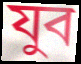
যুব